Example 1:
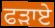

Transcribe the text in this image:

ਫੜਾਏ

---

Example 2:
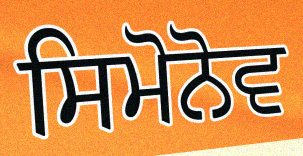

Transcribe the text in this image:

ਸਿਮੋਨੋਵ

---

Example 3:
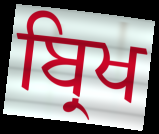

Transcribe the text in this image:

ਬ੍ਰਿਖ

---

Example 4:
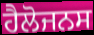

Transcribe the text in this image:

ਹੈਲੋਜਨਸ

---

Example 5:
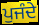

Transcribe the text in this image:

ਪੁਜੰਦੇ